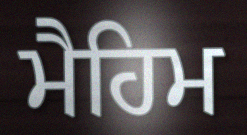
ਮੈਹਿਮ